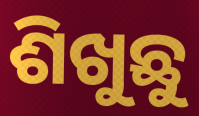
ଶିଖୁଛୁ